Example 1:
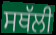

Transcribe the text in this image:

ਸਥੱਲੀ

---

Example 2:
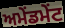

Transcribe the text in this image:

ਅਮੇਂਡਮੇਂਟ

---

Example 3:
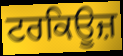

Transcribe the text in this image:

ਟਰਕਿਊਜ਼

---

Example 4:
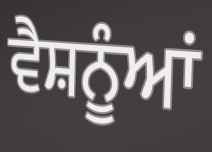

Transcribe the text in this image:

ਵੈਸ਼ਨੂੰਆਂ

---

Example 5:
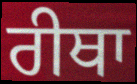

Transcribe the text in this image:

ਰੀਥਾ